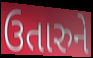
ઉતારુને